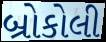
બ્રોકોલી